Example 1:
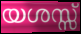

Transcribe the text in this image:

യശസ്സ്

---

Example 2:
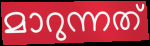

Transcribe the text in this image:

മാറുന്നത്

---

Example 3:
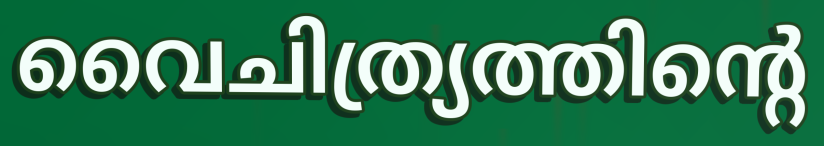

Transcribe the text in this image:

വൈചിത്ര്യത്തിന്റെ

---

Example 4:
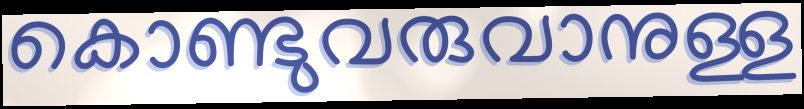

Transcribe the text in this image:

കൊണ്ടുവരുവാനുള്ള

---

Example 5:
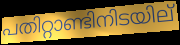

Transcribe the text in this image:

പതിറ്റാണ്ടിനിടയില്